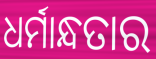
ଧର୍ମାନ୍ଧତାର